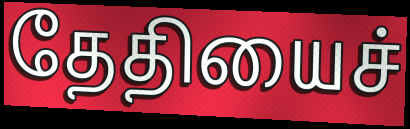
தேதியைச்